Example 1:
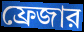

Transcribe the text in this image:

ফ্রেজার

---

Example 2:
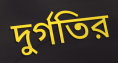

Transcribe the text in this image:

দুর্গতির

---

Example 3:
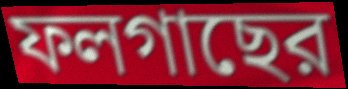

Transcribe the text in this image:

ফলগাছের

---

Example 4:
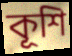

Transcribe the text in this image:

কূশি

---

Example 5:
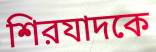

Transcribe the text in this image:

শিরযাদকে